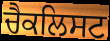
ਚੈਕਲਿਸਟ